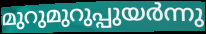
മുറുമുറുപ്പുയർന്നു